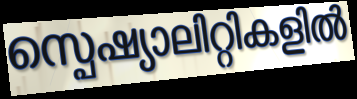
സ്പെഷ്യാലിറ്റികളിൽ